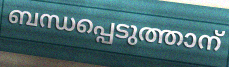
ബന്ധപ്പെടുത്താന്